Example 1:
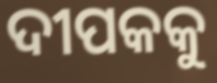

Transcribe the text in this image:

ଦୀପକକୁ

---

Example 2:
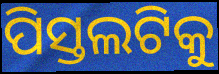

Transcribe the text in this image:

ପିସ୍ତଲଟିକୁ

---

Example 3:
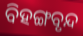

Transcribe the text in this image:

ବିହଙ୍ଗବୃନ୍ଦ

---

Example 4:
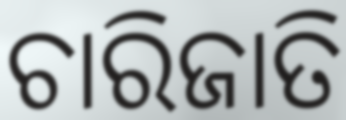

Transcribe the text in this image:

ଚାରିଜାତି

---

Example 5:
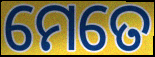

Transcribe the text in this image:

ମେତେ